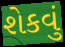
શેકવું